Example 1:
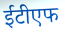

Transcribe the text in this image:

ईटीएफ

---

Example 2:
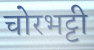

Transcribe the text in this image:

चोरभट्टी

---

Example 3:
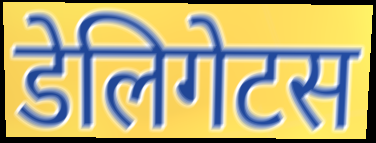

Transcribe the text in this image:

डेलिगेटस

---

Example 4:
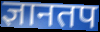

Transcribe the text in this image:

ज्ञानतप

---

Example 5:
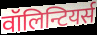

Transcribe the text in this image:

वॉलिन्टियर्स